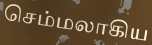
செம்மலாகிய